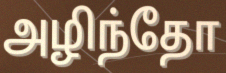
அழிந்தோ